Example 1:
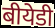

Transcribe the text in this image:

बीयेडी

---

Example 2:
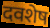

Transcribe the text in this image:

दवशेष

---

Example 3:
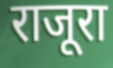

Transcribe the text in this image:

राजूरा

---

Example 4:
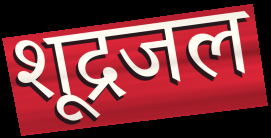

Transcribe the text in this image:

शूद्रजल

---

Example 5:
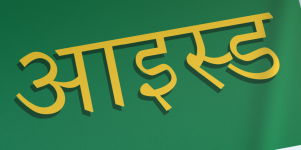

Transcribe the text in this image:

आइस्ड